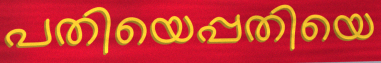
പതിയെപ്പതിയെ